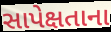
સાપેક્ષતાના